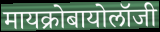
मायक्रोबायोलॉजी